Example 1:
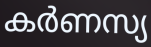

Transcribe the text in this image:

കർണസ്യ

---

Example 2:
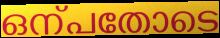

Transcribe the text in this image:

ഒന്പതോടെ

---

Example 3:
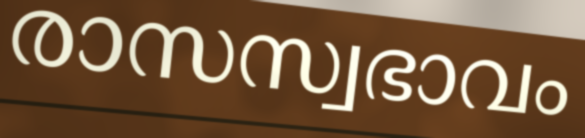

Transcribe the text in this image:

രാസസ്വഭാവം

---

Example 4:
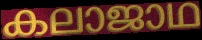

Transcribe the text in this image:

കലാജാഥ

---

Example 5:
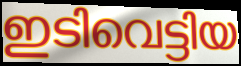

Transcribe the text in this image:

ഇടിവെട്ടിയ